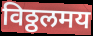
विठ्ठलमय